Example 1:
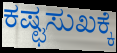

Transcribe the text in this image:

ಕಷ್ಟಸುಖಕ್ಕೆ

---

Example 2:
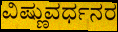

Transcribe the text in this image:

ವಿಷ್ಣುವರ್ಧನರ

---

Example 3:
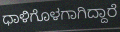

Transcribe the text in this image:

ಧಾಳಿಗೊಳಗಾಗಿದ್ದಾರೆ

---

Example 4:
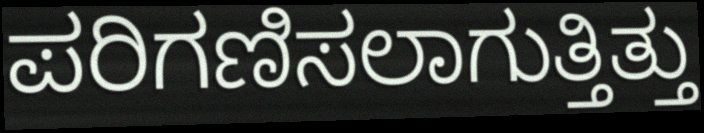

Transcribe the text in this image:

ಪರಿಗಣಿಸಲಾಗುತ್ತಿತ್ತು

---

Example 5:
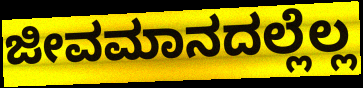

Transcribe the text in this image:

ಜೀವಮಾನದಲ್ಲೆಲ್ಲ